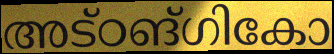
അട്ഠങ്ഗികോ